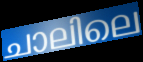
ചാലിലെ